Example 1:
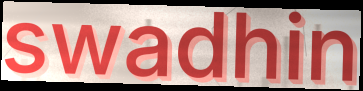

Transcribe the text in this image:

swadhin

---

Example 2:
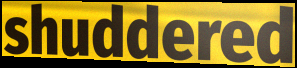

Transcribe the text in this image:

shuddered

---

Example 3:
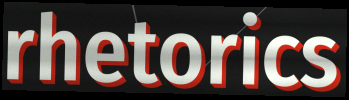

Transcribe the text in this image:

rhetorics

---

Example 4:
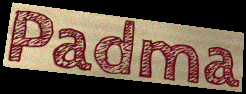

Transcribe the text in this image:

Padma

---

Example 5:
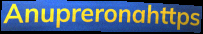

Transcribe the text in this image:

Anupreronahttps